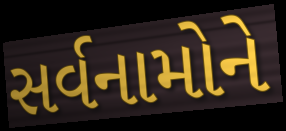
સર્વનામોને